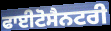
ਫਾਈਟੋਸੈਨਟਰੀ